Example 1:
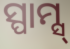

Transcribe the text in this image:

ସ୍ପାମ୍ସ୍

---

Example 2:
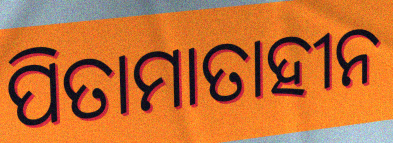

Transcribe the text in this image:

ପିତାମାତାହୀନ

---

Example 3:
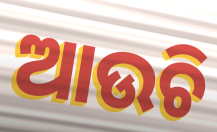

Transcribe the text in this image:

ଆଉଚି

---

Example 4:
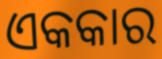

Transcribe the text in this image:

ଏକକାର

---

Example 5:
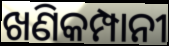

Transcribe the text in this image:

ଖଣିକମ୍ପାନୀ